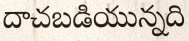
దాచబడియున్నది